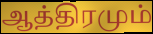
ஆத்திரமும்